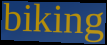
biking